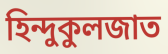
হিন্দুকুলজাত